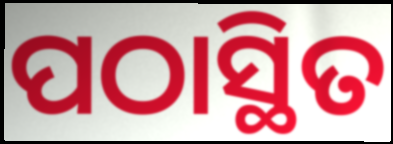
ପଠାସ୍ଥିତ